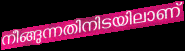
നീങ്ങുന്നതിനിടയിലാണ്